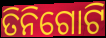
ତିନିଗୋଟି